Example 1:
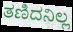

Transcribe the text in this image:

ತಣಿದನಿಲ್ಲ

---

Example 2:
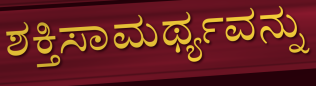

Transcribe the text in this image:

ಶಕ್ತಿಸಾಮರ್ಥ್ಯವನ್ನು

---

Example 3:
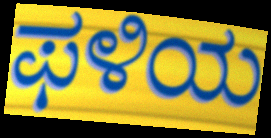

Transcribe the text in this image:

ಫಳಿಯ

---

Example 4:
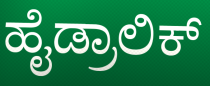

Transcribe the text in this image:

ಹೈಡ್ರಾಲಿಕ್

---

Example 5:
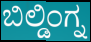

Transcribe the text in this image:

ಬಿಲ್ಡಿಂಗ್ನ